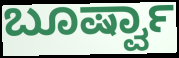
ಬೂರ್ಷ್ವಾ